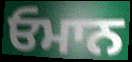
ਓਮਾਨ